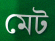
মেট